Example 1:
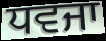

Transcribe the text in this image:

ਧਵਜਾ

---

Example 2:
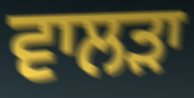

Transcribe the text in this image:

ਵਾਲੜਾ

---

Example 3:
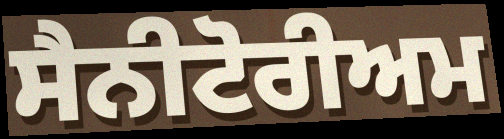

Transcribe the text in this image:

ਸੈਨੀਟੋਰੀਅਮ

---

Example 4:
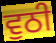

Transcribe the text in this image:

ਵੁਠੀ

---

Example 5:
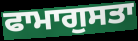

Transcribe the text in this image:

ਫਾਮਾਗੁਸਤਾ